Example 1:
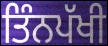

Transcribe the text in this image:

ਤਿੰਨਪੱਖੀ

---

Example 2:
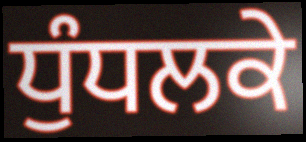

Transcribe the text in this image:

ਧੁੰਧਲਕੇ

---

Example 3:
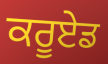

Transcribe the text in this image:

ਕਰੂਏਡ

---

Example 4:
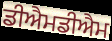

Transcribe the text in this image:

ਡੀਐਮਡੀਐਮ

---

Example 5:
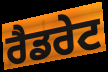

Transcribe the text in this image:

ਰੈਡਰੇਟ